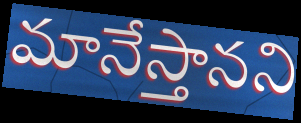
మానేస్తానని